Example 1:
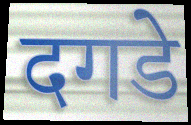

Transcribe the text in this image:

दगडे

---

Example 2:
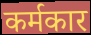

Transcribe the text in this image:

कर्मकार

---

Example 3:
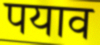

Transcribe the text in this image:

पयाव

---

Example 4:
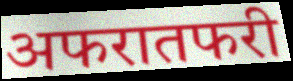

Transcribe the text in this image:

अफरातफरी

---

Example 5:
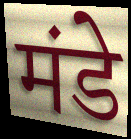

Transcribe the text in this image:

मंडे